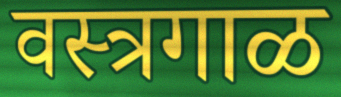
वस्त्रगाळ